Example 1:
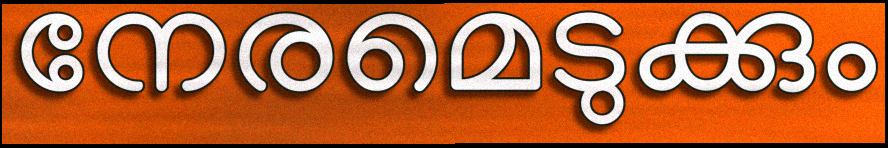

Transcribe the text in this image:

നേരമെടുക്കും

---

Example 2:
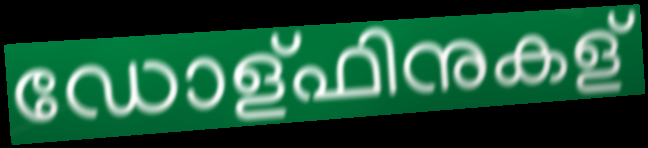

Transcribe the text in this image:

ഡോള്ഫിനുകള്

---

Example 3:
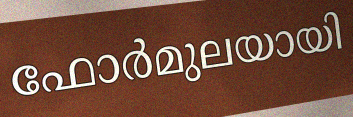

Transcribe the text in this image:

ഫോർമുലയായി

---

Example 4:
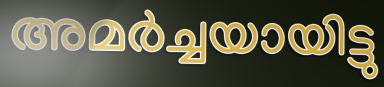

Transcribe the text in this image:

അമർച്ചയായിട്ടു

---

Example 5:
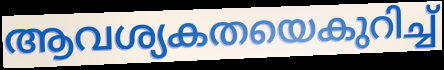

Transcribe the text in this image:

ആവശ്യകതയെകുറിച്ച്